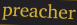
preacher